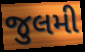
જુલમી